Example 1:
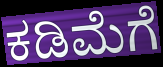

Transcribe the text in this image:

ಕಡಿಮೆಗೆ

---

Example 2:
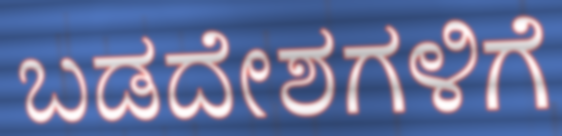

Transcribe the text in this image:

ಬಡದೇಶಗಳಿಗೆ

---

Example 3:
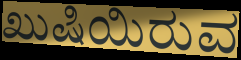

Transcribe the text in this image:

ಖುಷಿಯಿರುವ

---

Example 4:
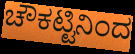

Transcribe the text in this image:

ಚೌಕಟ್ಟಿನಿಂದ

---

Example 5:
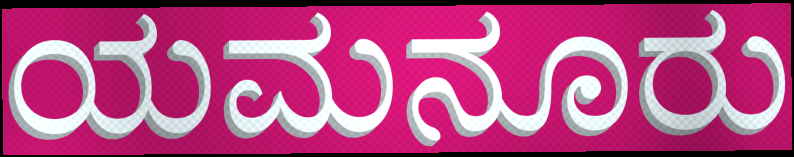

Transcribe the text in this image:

ಯಮನೂರು